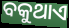
ବକୁଥାଏ